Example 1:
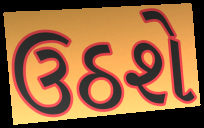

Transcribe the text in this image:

ઉઠશે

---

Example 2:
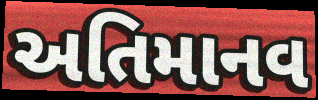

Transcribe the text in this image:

અતિમાનવ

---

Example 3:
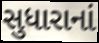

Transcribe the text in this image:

સુધારાનાં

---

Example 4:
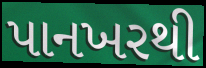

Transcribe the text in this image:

પાનખરથી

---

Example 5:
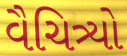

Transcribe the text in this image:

વૈચિત્ર્યો